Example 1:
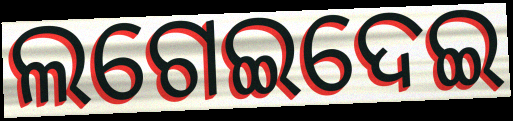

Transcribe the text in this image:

ଲଗେଇଦେଇ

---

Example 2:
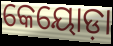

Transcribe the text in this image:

କେୟୋଡ଼ା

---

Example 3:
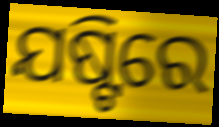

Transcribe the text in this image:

ଯଷ୍ଟିରେ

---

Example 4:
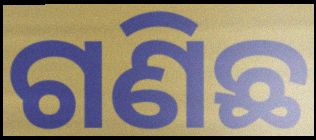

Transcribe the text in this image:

ଗଣିଛ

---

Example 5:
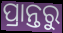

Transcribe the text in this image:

ପ୍ରାନ୍ତରୁ